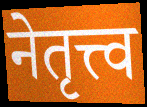
नेतृत्त्व